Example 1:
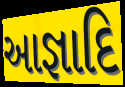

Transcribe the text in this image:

આજ્ઞાદિ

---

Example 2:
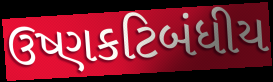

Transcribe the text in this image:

ઉષ્ણકટિબંધીય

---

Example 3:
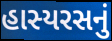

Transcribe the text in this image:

હાસ્યરસનું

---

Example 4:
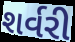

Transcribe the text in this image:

શર્વરી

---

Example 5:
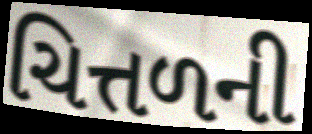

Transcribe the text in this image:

ચિત્તળની